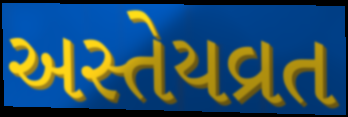
અસ્તેયવ્રત